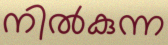
നിൽകുന്ന